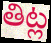
తిట్ల